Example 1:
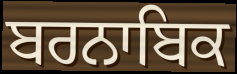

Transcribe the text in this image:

ਬਰਨਾਬਿਕ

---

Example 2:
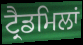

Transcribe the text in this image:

ਟ੍ਰੈਡਮਿਲਾਂ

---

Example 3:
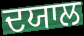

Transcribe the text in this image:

ਦਯਾਲ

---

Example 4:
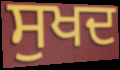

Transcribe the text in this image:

ਸੁਖਦ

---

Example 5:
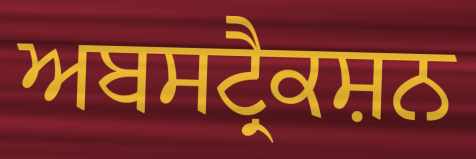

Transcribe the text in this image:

ਅਬਸਟ੍ਰੈਕਸ਼ਨ